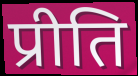
प्रीति